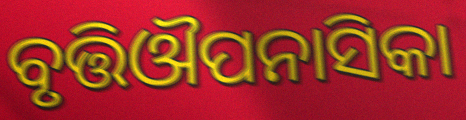
ବୃତ୍ତିଔପନାସିକା